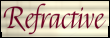
Refractive